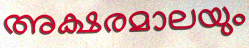
അക്ഷരമാലയും